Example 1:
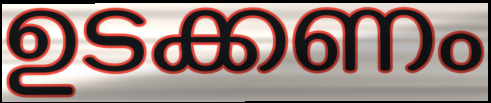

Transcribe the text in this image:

ഉടക്കണം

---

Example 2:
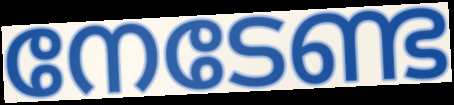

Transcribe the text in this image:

നേടേണ്ട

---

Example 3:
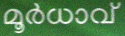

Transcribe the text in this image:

മൂർധാവ്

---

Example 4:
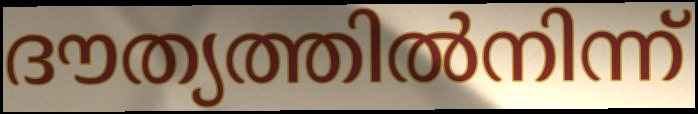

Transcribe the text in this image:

ദൗത്യത്തിൽനിന്ന്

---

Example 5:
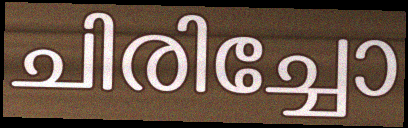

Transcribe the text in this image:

ചിരിച്ചോ